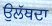
ਉਲੱਥਦਾ